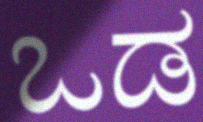
ಒಡ